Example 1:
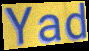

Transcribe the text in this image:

Yad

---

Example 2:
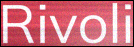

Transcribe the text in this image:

Rivoli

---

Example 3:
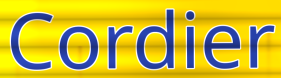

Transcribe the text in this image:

Cordier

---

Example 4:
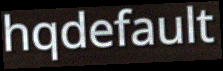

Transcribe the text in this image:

hqdefault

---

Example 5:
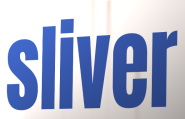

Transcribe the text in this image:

sliver